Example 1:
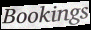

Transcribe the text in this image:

Bookings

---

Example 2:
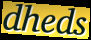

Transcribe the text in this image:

dheds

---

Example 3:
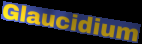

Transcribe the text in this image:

Glaucidium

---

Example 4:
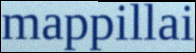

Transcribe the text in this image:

mappillai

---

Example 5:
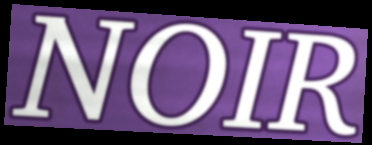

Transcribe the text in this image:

NOIR